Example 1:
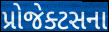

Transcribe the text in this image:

પ્રોજેક્ટસના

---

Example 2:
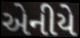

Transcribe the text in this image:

એનીયે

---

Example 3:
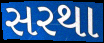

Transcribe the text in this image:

સરથા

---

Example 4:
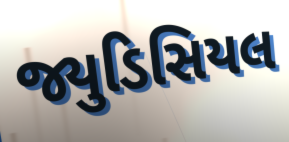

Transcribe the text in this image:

જ્યુડિસિયલ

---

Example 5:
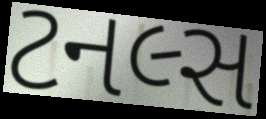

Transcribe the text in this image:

ટનલ્સ